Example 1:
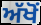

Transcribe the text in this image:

ਅੱਖੋਂ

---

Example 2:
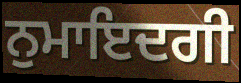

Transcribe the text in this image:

ਨੁਮਾਇਦਗੀ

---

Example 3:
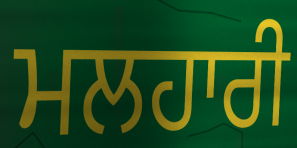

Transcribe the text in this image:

ਮਲਹਾਰੀ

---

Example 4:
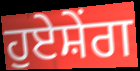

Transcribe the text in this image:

ਹੁਏਸ਼ੇਂਗ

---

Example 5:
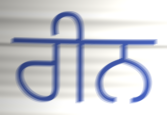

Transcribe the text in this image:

ਰੀਨ